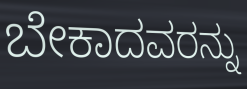
ಬೇಕಾದವರನ್ನು